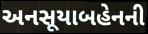
અનસૂયાબહેનની